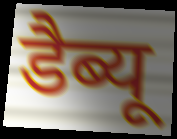
डैब्यू